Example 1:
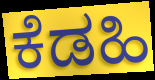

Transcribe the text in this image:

ಕೆಡಹಿ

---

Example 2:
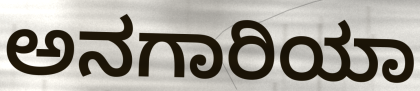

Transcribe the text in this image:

ಅನಗಾರಿಯಾ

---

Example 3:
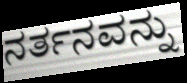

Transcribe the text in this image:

ನರ್ತನವನ್ನು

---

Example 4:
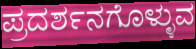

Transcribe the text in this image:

ಪ್ರದರ್ಶನಗೊಳ್ಳುವ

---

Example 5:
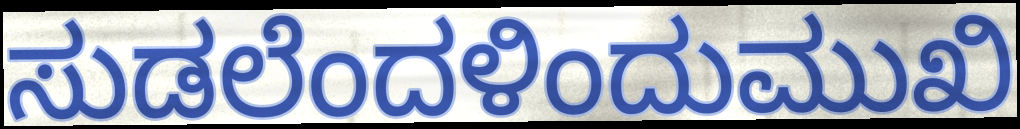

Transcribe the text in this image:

ಸುಡಲೆಂದಳಿಂದುಮುಖಿ